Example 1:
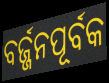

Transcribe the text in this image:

ବର୍ଜ୍ଜନପୂର୍ବକ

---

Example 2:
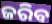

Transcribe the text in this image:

ଜରିବ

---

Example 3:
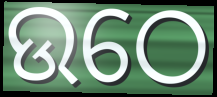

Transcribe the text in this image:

ଉଠେ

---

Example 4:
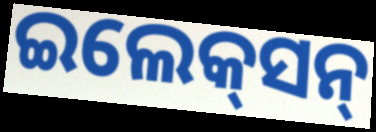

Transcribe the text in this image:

ଇଲେକ୍‌ସନ୍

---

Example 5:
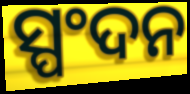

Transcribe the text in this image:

ସ୍ପଂଦନ